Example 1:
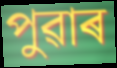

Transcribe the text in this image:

পুৱাৰ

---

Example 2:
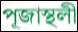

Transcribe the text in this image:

পূজাস্থলী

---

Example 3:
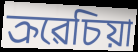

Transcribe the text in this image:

ক্ৰৱেচিয়া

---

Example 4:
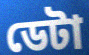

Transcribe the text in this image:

ডেটা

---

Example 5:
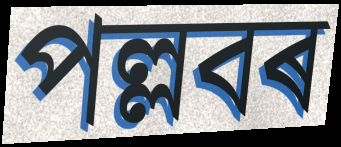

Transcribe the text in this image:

পল্লবৰ